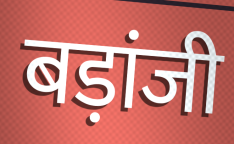
बड़ांजी